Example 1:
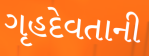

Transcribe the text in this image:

ગૃહદેવતાની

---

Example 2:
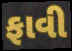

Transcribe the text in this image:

ફાવી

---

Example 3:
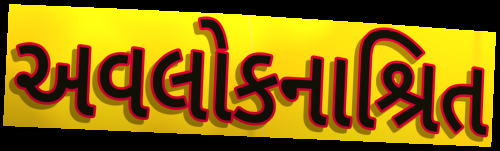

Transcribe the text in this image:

અવલોકનાશ્રિત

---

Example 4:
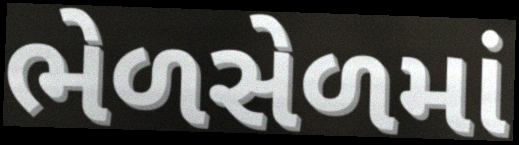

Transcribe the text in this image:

ભેળસેળમાં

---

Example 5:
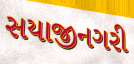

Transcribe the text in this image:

સયાજીનગરી